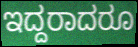
ಇದ್ದರಾದರೂ